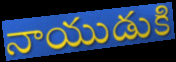
నాయుడుకి